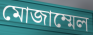
মোজাম্মেল